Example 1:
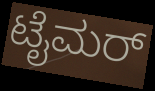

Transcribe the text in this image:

ಟೈಮರ್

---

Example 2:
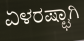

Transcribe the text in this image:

ಏಳರಷ್ಟಾಗಿ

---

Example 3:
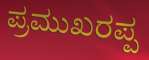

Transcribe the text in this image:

ಪ್ರಮುಖರಪ್ಪ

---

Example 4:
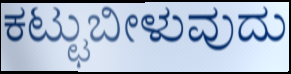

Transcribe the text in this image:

ಕಟ್ಟುಬೀಳುವುದು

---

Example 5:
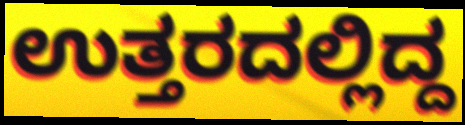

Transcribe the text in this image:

ಉತ್ತರದಲ್ಲಿದ್ದ